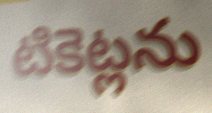
టికెట్లను